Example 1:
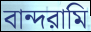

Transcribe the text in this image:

বান্দরামি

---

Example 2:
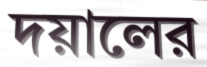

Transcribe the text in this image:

দয়ালের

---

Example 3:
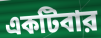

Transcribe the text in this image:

একটিবার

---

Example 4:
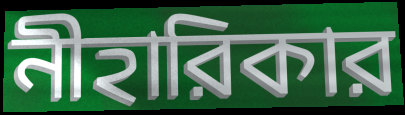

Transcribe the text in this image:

নীহারিকার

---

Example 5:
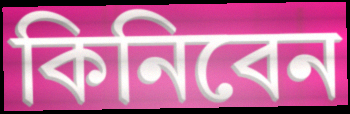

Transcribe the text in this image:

কিনিবেন